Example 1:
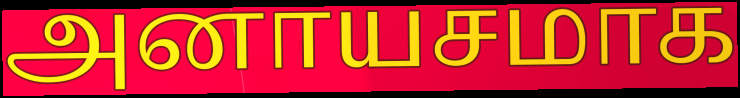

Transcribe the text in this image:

அனாயசமாக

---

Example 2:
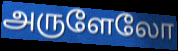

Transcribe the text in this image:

அருளேலோ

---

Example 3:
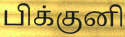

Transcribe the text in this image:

பிக்குனி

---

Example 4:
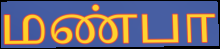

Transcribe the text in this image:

மண்பா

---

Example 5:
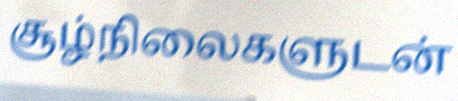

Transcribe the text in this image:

சூழ்நிலைகளுடன்